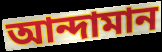
আন্দামান